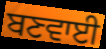
ਬਣਵਾਈ